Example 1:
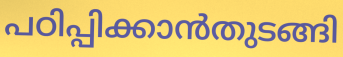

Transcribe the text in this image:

പഠിപ്പിക്കാൻതുടങ്ങി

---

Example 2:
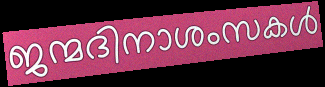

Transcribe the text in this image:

ജന്മദിനാശംസകൾ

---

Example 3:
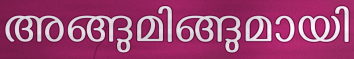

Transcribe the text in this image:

അങ്ങുമിങ്ങുമായി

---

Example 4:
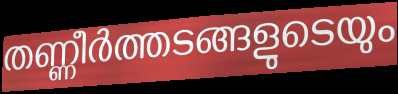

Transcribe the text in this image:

തണ്ണീർത്തടങ്ങളുടെയും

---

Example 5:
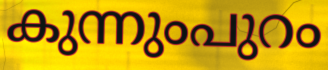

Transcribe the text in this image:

കുന്നുംപുറം